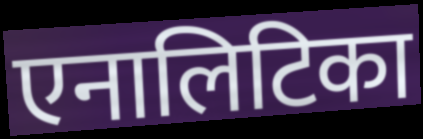
एनालिटिका